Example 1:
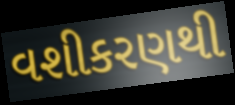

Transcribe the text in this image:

વશીકરણથી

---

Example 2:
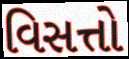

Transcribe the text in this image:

વિસત્તો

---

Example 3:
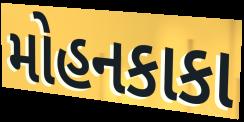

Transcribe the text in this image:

મોહનકાકા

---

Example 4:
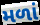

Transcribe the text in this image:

મળાં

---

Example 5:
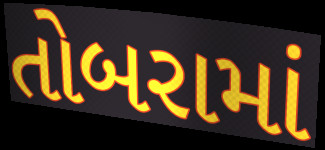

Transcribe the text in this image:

તોબરામાં